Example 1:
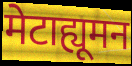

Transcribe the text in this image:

मेटाह्यूमन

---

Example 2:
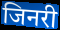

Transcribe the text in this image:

जिनरी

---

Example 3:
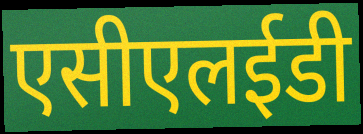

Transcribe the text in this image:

एसीएलईडी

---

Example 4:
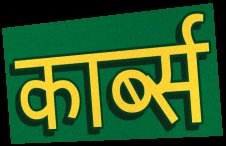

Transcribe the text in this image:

कार्ब्स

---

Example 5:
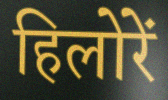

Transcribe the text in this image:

हिलोरें